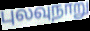
புலவுநாறு